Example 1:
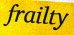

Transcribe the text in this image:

frailty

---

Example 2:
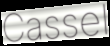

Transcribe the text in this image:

Cassel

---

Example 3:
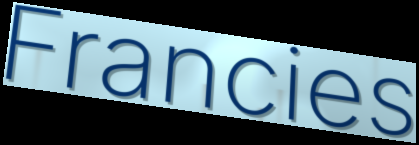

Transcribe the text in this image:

Francies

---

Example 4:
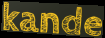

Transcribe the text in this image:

kande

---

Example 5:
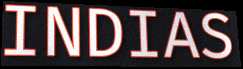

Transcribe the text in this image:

INDIAS